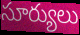
సూర్యులు